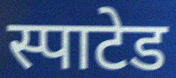
स्पाटेड